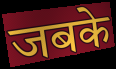
जबके